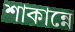
শাকান্নে